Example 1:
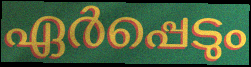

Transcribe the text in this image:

ഏർപ്പെടും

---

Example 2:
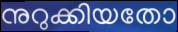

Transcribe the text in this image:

നുറുക്കിയതോ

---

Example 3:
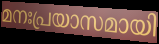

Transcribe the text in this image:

മനഃപ്രയാസമായി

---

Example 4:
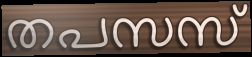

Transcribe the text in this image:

തപസസ്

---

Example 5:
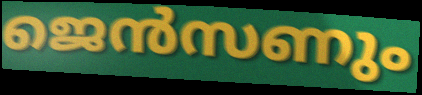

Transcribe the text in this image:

ജെൻസണും